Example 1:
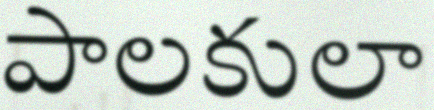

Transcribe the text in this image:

పాలకులా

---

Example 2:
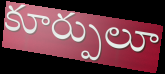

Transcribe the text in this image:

కూర్పులూ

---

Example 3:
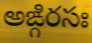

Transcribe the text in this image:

అఙ్గిరసః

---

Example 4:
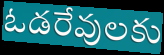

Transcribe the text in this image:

ఓడరేవులకు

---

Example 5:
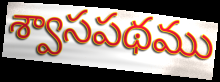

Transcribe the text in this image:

శ్వాసపథము